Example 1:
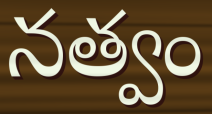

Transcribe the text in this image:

నత్వం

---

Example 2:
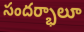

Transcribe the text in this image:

సందర్భాలూ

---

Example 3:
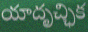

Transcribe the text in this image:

యాదృచ్ఛిక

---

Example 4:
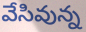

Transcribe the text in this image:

వేసివున్న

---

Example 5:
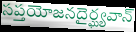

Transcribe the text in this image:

సప్తయోజనదైర్ఘ్యవాన్